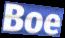
Boe